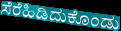
ಸೆರೆಹಿಡಿದುಕೊಂಡು